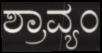
ಶ್ರಾವ್ಯಂ